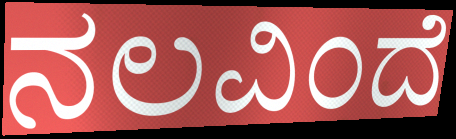
ನಲವಿಂದೆ